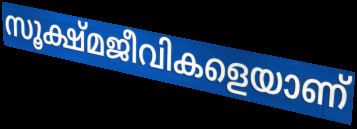
സൂക്ഷ്മജീവികളെയാണ്